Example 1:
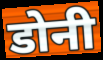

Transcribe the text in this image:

डोनी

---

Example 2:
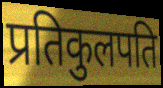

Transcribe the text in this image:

प्रतिकुलपति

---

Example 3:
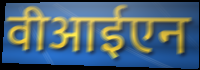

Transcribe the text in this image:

वीआईएन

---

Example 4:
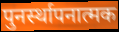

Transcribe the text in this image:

पुनर्स्थापनात्मक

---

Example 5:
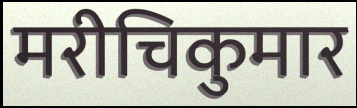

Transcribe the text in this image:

मरीचिकुमार